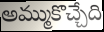
అమ్ముకొచ్చేది